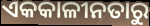
ଏକକାଳୀନତାରୁ